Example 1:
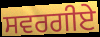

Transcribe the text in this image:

ਸਵਰਗੀਏ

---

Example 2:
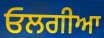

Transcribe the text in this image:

ਓਲਗੀਆ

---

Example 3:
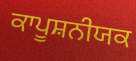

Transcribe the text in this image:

ਕਾਪੂਸ਼ਨੀਯਕ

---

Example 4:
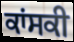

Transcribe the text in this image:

ਕਾਂਸਕੀ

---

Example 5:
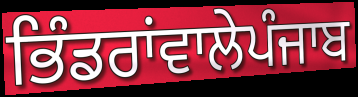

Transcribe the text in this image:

ਭਿੰਡਰਾਂਵਾਲੇਪੰਜਾਬ